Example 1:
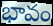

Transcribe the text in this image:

భావం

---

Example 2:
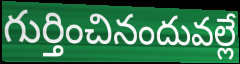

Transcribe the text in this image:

గుర్తించినందువల్లే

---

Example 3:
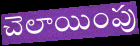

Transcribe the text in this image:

చెలాయింపు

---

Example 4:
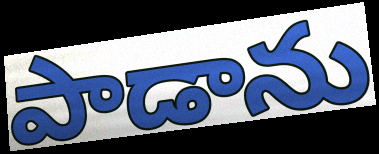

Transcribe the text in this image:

పాడాను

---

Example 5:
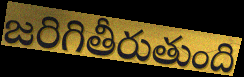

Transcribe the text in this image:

జరిగితీరుతుంది